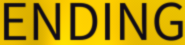
ENDING